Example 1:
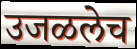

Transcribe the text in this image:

उजळलेच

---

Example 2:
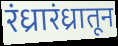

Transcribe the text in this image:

रंध्रारंध्रातून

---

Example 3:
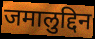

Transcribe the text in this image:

जमालुद्दिन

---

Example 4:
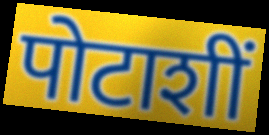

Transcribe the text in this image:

पोटाशीं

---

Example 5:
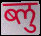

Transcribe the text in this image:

ब्लु